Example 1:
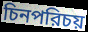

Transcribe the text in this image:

চিনপরিচয়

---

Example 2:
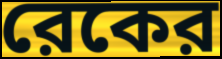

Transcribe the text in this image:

রেকের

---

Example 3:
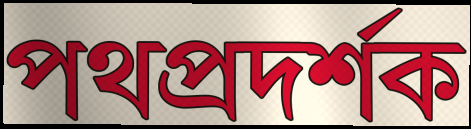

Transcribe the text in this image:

পথপ্রদর্শক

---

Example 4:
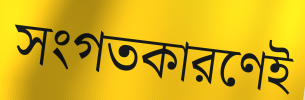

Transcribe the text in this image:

সংগতকারণেই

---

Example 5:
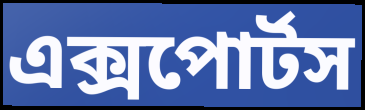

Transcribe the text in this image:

এক্সপোর্টস